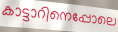
കാട്ടാറിനെപ്പോലെ